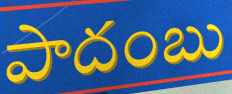
పాదంబు